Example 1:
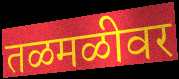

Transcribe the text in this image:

तळमळीवर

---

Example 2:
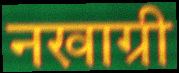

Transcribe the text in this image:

नखाग्री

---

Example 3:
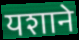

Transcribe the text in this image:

यशाने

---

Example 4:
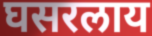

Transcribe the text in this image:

घसरलाय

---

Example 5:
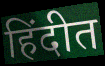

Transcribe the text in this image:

हिंदीत